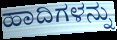
ಹಾದಿಗಳನ್ನು